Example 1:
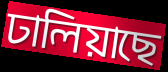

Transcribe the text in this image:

ঢালিয়াছে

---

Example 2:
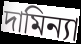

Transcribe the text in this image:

দামিন্যা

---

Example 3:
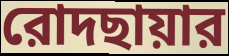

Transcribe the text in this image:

রোদছায়ার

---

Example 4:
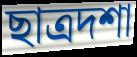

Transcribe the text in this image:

ছাত্রদশা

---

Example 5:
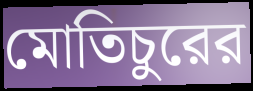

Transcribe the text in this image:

মোতিচুরের